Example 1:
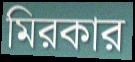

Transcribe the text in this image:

মিরকার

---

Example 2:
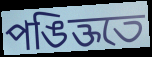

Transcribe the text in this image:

পঙিক্ততে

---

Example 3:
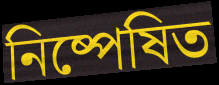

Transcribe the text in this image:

নিষ্পেষিত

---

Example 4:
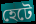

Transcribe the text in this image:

হেটে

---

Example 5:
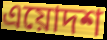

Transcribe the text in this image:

এয়োদশ